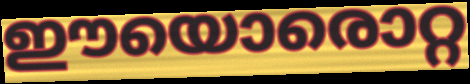
ഈയൊരൊറ്റ